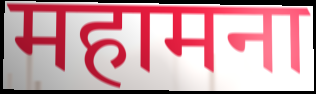
महामना